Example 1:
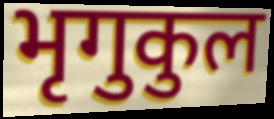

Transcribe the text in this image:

भृगुकुल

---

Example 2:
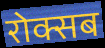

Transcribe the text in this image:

रोक्सब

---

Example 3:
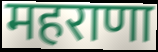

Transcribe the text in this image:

महराणा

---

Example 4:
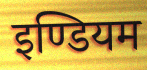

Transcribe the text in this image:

इण्डियम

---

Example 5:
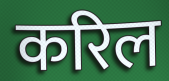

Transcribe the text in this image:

करिल